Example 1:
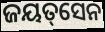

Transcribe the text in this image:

ଜୟତ୍‌ସେନ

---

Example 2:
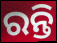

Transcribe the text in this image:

ରନ୍ତି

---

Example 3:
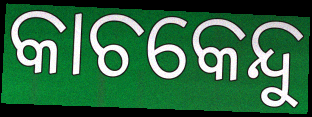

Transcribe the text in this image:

କାଚକେନ୍ଦୁ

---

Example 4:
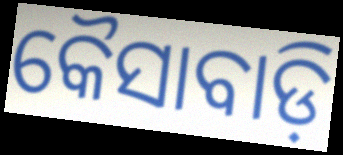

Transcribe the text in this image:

କୈସାବାଡ଼ି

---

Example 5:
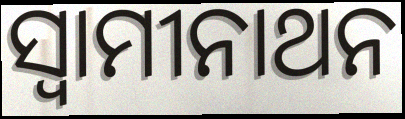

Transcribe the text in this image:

ସ୍ବାମୀନାଥନ